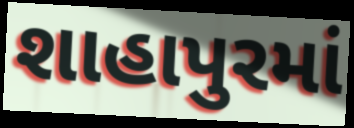
શાહાપુરમાં